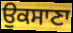
ਉਕਸਾਣਾ